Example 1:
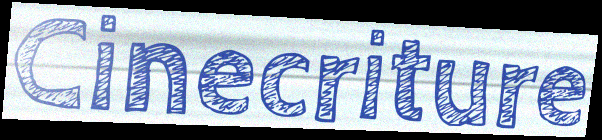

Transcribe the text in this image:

Cinecriture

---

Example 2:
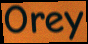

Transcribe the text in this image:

Orey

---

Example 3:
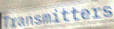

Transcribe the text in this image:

Transmitters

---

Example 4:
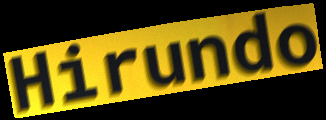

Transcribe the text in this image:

Hirundo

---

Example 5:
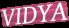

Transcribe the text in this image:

VIDYA